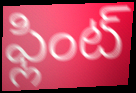
ఫ్లింట్